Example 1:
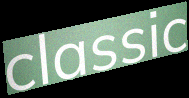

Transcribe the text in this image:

classic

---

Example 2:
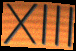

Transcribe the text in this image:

XIII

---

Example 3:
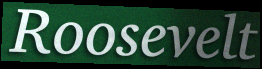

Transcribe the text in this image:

Roosevelt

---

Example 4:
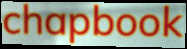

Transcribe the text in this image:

chapbook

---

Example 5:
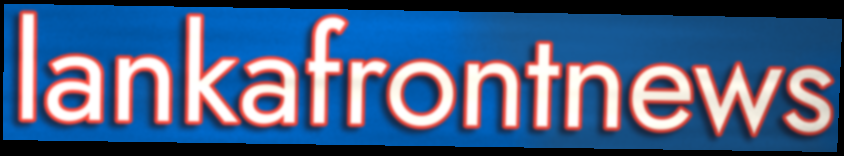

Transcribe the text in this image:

lankafrontnews